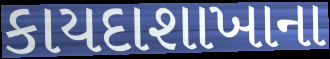
કાયદાશાખાના